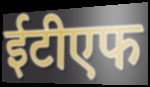
ईटीएफ